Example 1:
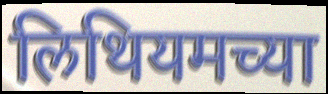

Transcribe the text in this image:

लिथियमच्या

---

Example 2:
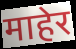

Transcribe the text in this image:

माहेर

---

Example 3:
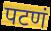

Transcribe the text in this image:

पटणं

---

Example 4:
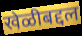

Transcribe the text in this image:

खेळीबद्दल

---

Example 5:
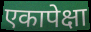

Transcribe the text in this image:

एकापेक्षा